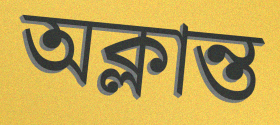
অক্লান্ত